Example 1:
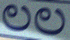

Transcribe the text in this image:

ಲಲ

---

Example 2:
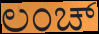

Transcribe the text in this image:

ಲಂಚ್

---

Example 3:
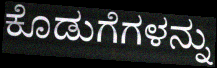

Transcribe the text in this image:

ಕೊಡುಗೆಗಳನ್ನು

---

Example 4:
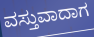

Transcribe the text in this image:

ವಸ್ತುವಾದಾಗ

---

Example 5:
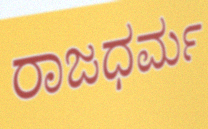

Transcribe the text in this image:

ರಾಜಧರ್ಮ